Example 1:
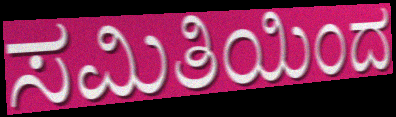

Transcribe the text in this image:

ಸಮಿತಿಯಿಂದ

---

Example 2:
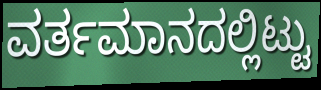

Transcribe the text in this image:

ವರ್ತಮಾನದಲ್ಲಿಟ್ಟು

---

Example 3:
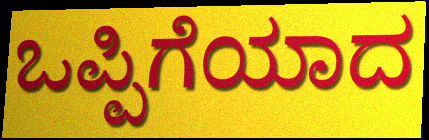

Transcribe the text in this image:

ಒಪ್ಪಿಗೆಯಾದ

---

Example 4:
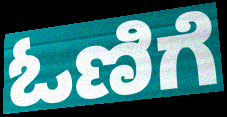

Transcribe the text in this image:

ಓಣಿಗೆ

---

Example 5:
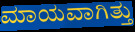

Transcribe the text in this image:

ಮಾಯವಾಗಿತ್ತು